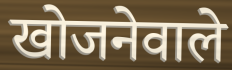
खोजनेवाले